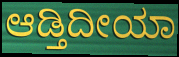
ಆಡ್ತಿದೀಯಾ